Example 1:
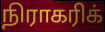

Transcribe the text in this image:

நிராகரிக்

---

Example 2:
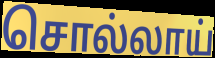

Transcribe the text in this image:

சொல்லாய்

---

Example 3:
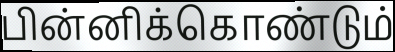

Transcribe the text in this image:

பின்னிக்கொண்டும்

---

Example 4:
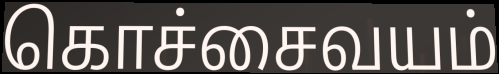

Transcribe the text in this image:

கொச்சைவயம்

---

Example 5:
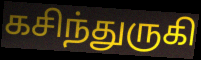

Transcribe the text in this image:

கசிந்துருகி